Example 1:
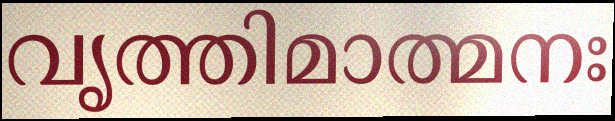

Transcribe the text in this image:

വൃത്തിമാത്മനഃ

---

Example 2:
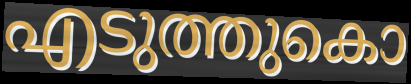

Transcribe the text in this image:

എടുത്തുകൊ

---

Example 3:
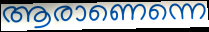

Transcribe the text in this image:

ആരാണെന്നെ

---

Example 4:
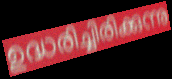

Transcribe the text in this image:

ഉദ്ധരിച്ചിരിക്കുന്നു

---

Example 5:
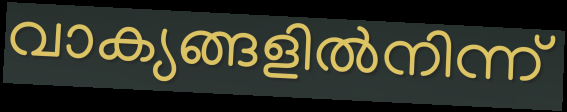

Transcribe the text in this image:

വാക്യങ്ങളിൽനിന്ന്